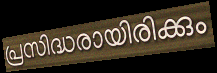
പ്രസിദ്ധരായിരിക്കും